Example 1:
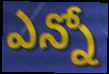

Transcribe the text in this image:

ఎన్నో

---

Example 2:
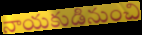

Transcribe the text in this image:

నాయకుడినుంచి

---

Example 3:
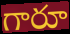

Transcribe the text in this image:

గారూ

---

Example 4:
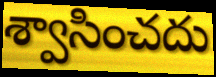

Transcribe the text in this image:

శ్వాసించదు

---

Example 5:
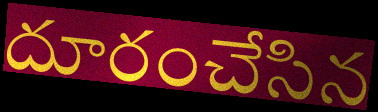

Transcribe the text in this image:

దూరంచేసిన